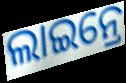
ଲାଇନ୍ରେ